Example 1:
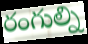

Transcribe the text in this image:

రంగుల్ని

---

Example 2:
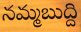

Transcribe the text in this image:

నమ్మబుద్ది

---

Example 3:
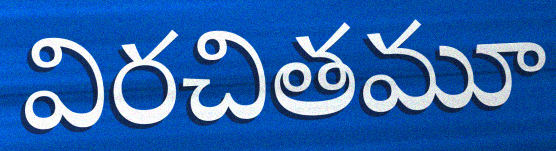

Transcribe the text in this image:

విరచితమూ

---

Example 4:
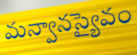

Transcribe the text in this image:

మన్వానస్యైవం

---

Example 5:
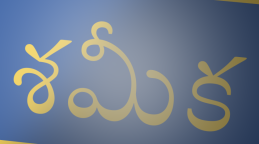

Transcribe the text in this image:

శమీక